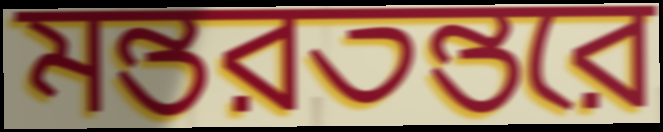
মন্তরতন্তরে